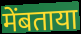
मेंबताया